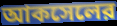
আকসেলের